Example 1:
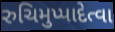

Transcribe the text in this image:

રુચિમુપ્પાદેત્વા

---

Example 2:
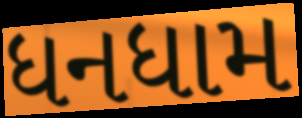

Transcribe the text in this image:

ધનધામ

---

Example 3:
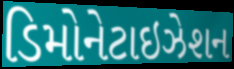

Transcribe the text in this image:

ડિમોનેટાઇઝેશન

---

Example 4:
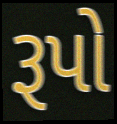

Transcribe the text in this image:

રૂપો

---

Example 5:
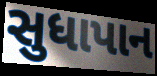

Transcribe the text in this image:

સુધાપાન